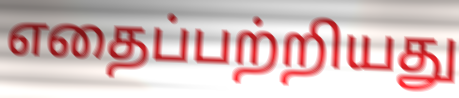
எதைப்பற்றியது